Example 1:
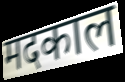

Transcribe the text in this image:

मदकाल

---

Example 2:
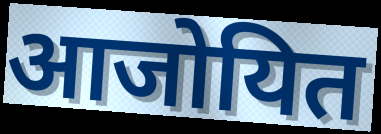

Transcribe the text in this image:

आजोयित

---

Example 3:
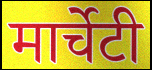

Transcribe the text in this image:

मार्चेटी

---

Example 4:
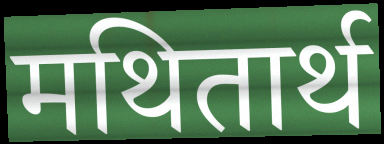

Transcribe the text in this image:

मथितार्थ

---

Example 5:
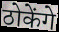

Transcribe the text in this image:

ठोकेंगे